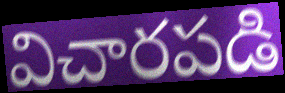
విచారపడి